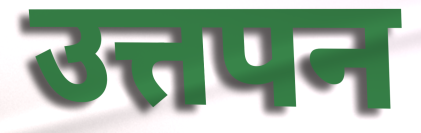
उत्तपन